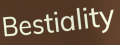
Bestiality